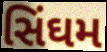
સિંઘમ